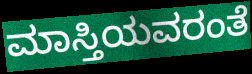
ಮಾಸ್ತಿಯವರಂತೆ